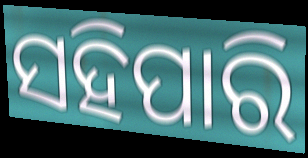
ସହିପାରି